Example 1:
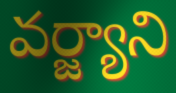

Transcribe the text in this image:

వర్జ్యాని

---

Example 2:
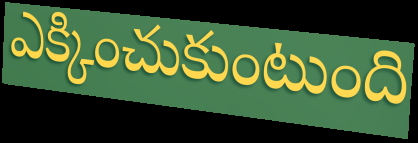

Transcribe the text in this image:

ఎక్కించుకుంటుంది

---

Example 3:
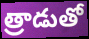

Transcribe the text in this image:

త్రాడుతో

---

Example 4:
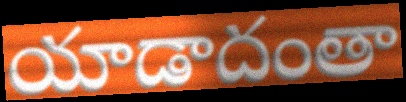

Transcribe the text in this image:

యాడాదంతా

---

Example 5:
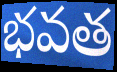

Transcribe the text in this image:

భవత